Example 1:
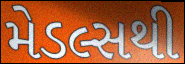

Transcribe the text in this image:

મેડલ્સથી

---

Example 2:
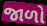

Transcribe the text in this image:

જાળો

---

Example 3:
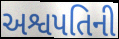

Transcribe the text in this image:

અશ્વપતિની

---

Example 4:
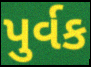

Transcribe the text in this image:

પુર્વક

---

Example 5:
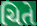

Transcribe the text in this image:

ચિતે